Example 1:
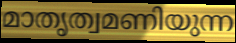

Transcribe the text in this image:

മാതൃത്വമണിയുന്ന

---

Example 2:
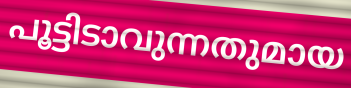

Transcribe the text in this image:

പൂട്ടിടാവുന്നതുമായ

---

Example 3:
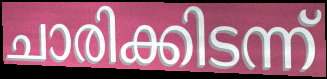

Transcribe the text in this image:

ചാരിക്കിടന്ന്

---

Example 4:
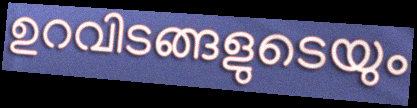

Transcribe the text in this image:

ഉറവിടങ്ങളുടെയും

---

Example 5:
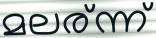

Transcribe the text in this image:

മലര്ന്ന്